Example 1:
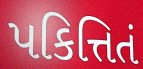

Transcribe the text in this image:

પકિત્તિતં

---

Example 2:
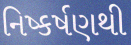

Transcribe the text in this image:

નિષ્કર્ષણથી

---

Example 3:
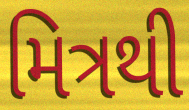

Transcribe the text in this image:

મિત્રથી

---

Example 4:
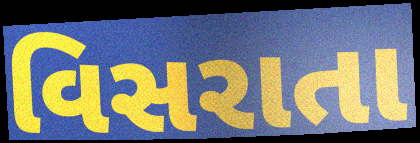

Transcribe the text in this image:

વિસરાતા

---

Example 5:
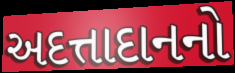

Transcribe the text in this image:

અદત્તાદાનનો